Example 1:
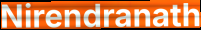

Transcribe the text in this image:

Nirendranath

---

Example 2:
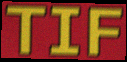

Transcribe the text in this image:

TIF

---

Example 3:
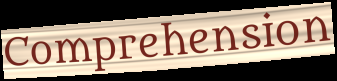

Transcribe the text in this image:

Comprehension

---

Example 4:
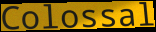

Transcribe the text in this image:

Colossal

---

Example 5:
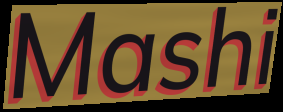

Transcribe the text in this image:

Mashi